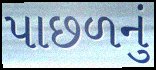
પાછળનું